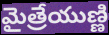
మైత్రేయుణ్ణి